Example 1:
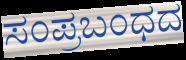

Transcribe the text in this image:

ಸಂಪ್ರಬಂಧದ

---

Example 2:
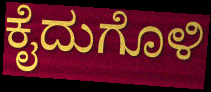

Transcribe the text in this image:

ಕೈದುಗೊಳಿ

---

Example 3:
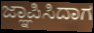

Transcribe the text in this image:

ಜ್ಞಾಪಿಸಿದಾಗ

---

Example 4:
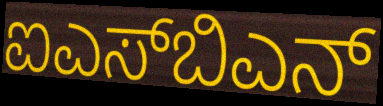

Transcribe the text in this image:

ಐಎಸ್‌ಬಿಎನ್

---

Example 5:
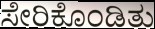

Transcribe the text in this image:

ಸೇರಿಕೊಂಡಿತು